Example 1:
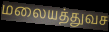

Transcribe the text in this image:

மலையத்துவச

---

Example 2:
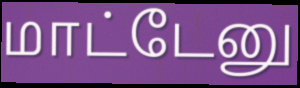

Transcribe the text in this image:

மாட்டேனு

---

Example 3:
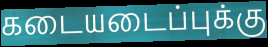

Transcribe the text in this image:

கடையடைப்புக்கு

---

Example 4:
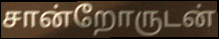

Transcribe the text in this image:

சான்றோருடன்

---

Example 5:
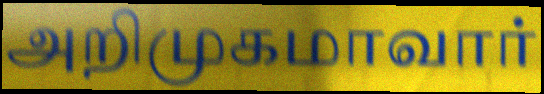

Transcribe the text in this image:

அறிமுகமாவார்